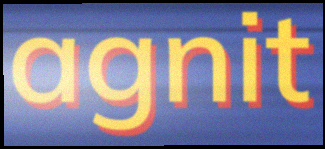
agnit